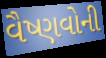
વૈષ્ણવોની